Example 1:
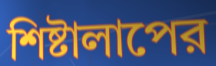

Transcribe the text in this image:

শিষ্টালাপের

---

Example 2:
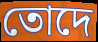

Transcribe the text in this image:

তোদে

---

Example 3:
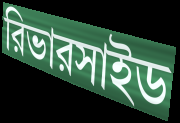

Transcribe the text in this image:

রিভারসাইড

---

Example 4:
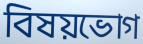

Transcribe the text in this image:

বিষয়ভোগ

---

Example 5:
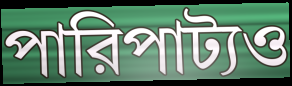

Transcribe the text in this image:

পারিপাট্যও